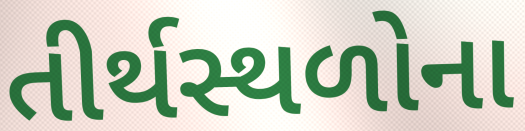
તીર્થસ્થળોના